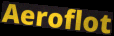
Aeroflot